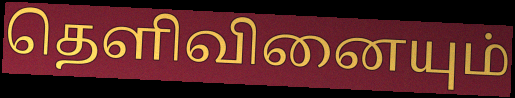
தெளிவினையும்